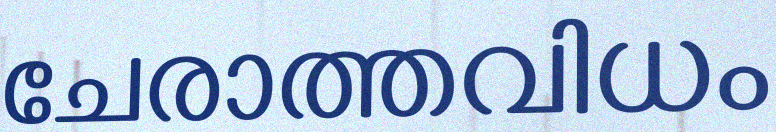
ചേരാത്തവിധം